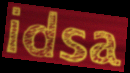
idsa